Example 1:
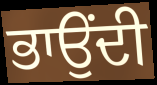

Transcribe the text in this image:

ਭਾਉਂਦੀ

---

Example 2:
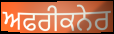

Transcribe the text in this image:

ਅਫਰੀਕਨੇਰ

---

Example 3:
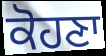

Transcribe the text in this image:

ਕੋਹਣਾ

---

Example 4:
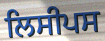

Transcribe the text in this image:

ਲਿਸੀਪਸ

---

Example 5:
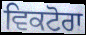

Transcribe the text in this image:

ਵਿਕਟੋਰਾ